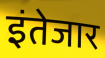
इंतेजार